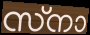
സ്‌നാ